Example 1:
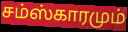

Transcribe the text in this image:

சம்ஸ்காரமும்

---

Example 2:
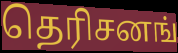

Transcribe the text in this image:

தெரிசனங்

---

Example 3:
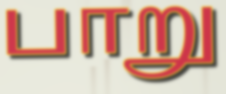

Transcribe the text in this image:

பாறு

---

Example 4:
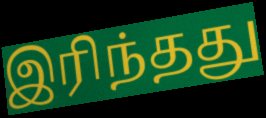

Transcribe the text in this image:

இரிந்தது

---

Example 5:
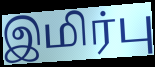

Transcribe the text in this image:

இமிர்பு